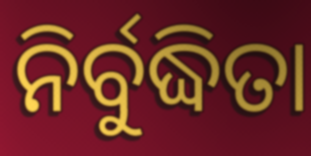
ନିର୍ବୁଦ୍ଧିତା